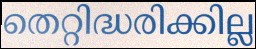
തെറ്റിദ്ധരിക്കില്ല